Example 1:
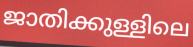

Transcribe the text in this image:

ജാതിക്കുള്ളിലെ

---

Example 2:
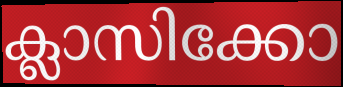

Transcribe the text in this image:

ക്ലാസിക്കോ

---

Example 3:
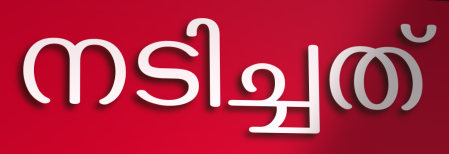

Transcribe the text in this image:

നടിച്ചത്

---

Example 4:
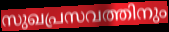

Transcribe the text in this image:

സുഖപ്രസവത്തിനും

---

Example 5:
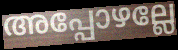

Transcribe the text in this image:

അപ്പോഴല്ലേ